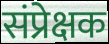
संप्रेक्षक